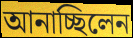
আনাচ্ছিলেন